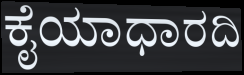
ಕೈಯಾಧಾರದಿ